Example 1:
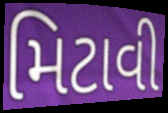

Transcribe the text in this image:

મિટાવી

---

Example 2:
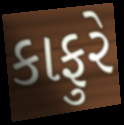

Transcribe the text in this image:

કાફુરે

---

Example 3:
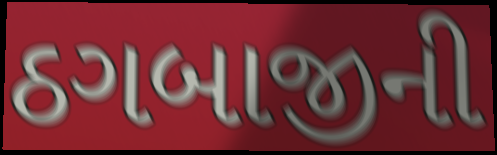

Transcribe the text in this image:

ઠગબાજીની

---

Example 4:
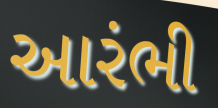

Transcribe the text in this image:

આરંભી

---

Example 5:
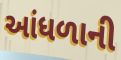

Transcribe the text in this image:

આંધળાની